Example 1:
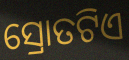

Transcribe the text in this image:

ସ୍ରୋତଟିଏ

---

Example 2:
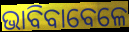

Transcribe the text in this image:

ଭାବିବାବେଳେ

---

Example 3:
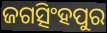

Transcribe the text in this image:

ଜଗତ୍ସିଂହପୁର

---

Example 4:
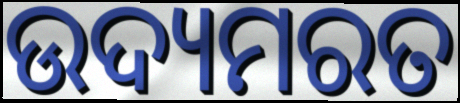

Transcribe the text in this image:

ଉଦ୍ୟମରତ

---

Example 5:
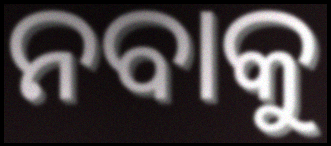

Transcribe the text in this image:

ନବାକୁ